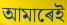
আমাৰেই